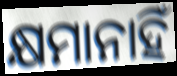
କ୍ଷମାନାହିଁ